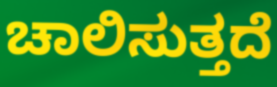
ಚಾಲಿಸುತ್ತದೆ